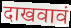
दाखवावं